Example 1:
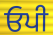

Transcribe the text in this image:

ਓਪੀ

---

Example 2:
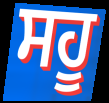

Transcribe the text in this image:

ਸਹੂ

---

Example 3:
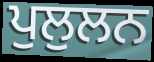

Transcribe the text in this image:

ਪੁਲੁਲਨ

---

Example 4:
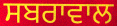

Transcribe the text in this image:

ਸਬਰਾਵਾਲ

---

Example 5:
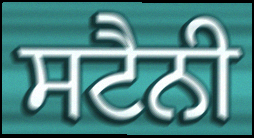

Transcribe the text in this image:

ਸਟੈਨੀ